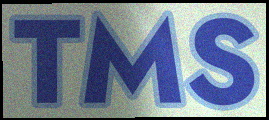
TMS